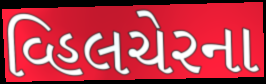
વ્હિલચેરના